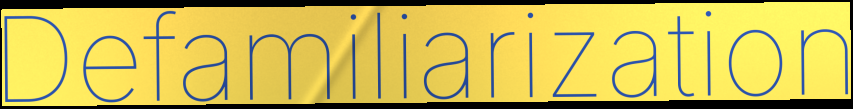
Defamiliarization